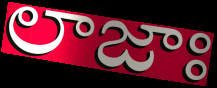
లాజాః